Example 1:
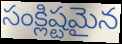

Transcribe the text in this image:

సంక్లిష్టమైన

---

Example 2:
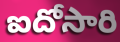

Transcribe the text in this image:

ఐదోసారి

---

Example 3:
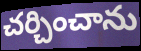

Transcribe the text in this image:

చర్చించాను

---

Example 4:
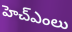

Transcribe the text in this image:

హెచ్ఎంలు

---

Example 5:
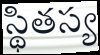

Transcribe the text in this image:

స్థితస్య